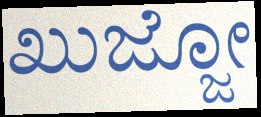
ಖುಜ್ಜೋ